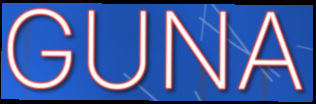
GUNA